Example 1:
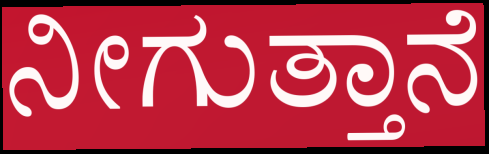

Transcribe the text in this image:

ನೀಗುತ್ತಾನೆ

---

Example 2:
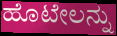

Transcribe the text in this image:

ಹೊಟೇಲನ್ನು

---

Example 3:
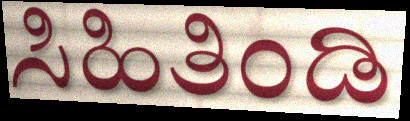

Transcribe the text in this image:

ಸಿಹಿತಿಂಡಿ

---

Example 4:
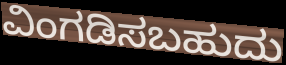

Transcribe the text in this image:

ವಿಂಗಡಿಸಬಹುದು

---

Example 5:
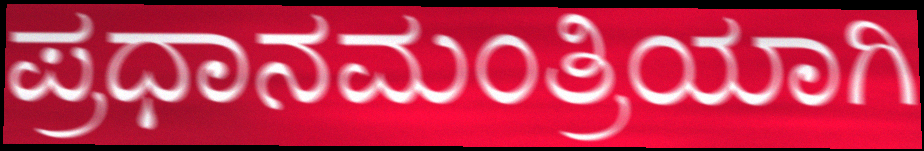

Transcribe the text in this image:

ಪ್ರಧಾನಮಂತ್ರಿಯಾಗಿ